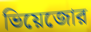
ভিয়েজোর